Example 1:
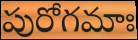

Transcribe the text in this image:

పురోగమాః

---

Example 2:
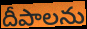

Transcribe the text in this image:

దీపాలను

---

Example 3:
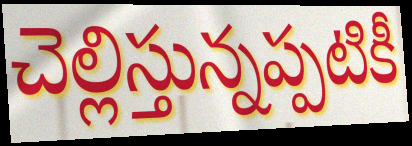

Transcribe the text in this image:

చెల్లిస్తున్నప్పటికీ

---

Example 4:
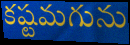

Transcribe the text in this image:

కష్టమగును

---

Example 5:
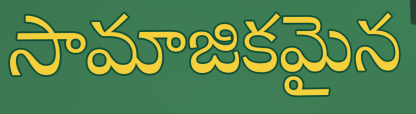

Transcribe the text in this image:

సామాజికమైన